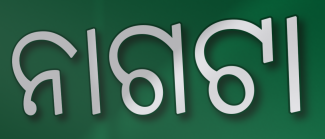
ନାଗଟା